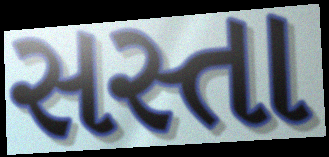
સસ્તા